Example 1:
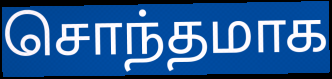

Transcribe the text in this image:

சொந்தமாக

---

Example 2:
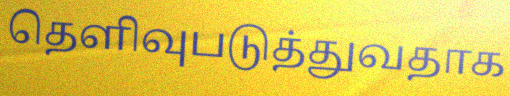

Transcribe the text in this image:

தெளிவுபடுத்துவதாக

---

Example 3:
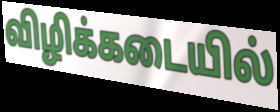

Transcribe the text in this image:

விழிக்கடையில்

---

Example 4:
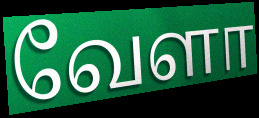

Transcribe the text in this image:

வேளா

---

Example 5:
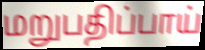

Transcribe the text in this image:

மறுபதிப்பாய்